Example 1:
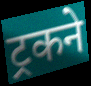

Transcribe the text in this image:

ट्रकने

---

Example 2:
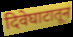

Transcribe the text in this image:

दिवेघाटातून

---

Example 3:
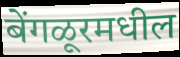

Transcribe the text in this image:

बेंगळूरमधील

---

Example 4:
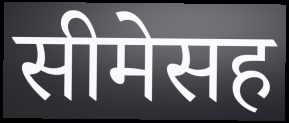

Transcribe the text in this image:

सीमेसह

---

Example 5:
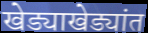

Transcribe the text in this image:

खेड्याखेड्यांत